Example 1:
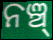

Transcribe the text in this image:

ନଞ୍ଚ୍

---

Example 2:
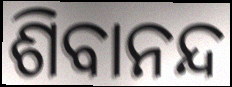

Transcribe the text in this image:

ଶିବାନନ୍ଦ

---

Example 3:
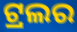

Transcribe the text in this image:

ଟ୍ରଲର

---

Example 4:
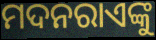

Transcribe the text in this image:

ମଦନରାଏଙ୍କୁ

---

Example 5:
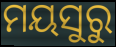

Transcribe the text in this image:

ମୟସୁରୁ